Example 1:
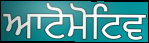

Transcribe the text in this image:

ਆਟੋਮੋਟਿਵ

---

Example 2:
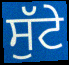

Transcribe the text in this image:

ਸੁੱਟੇ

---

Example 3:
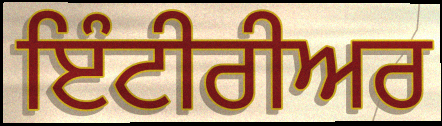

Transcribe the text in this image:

ਇੰਟੀਰੀਅਰ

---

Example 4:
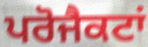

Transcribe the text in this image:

ਪਰੋਜੈਕਟਾਂ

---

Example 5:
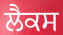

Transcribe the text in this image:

ਲੈਕਸ